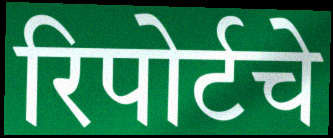
रिपोर्टचे